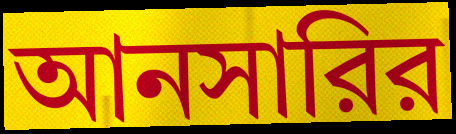
আনসারির